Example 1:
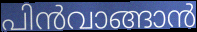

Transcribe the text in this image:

പിൻവാങ്ങാൻ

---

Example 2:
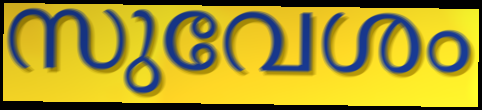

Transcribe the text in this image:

സുവേശം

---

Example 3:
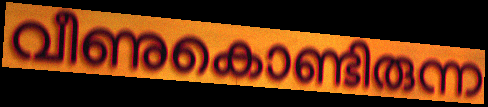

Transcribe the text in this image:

വീണുകൊണ്ടിരുന്ന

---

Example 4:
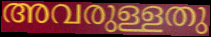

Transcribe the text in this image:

അവരുള്ളതു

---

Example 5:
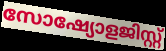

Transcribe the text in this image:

സോഷ്യോളജിസ്റ്റ്